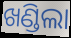
ଖଣ୍ଡିଲା